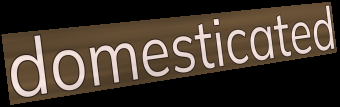
domesticated